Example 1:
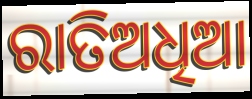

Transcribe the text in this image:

ରାତିଅଧିଆ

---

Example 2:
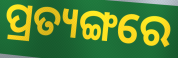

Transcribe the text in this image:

ପ୍ରତ୍ୟଙ୍ଗରେ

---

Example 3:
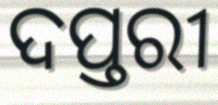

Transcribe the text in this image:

ଦପ୍ତରୀ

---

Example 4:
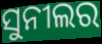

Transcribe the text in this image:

ସୁନୀଲର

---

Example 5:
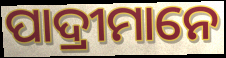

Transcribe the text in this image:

ପାଦ୍ରୀମାନେ